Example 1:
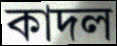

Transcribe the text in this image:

কাদল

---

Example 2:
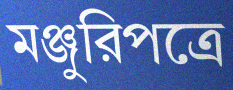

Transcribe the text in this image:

মঞ্জুরিপত্রে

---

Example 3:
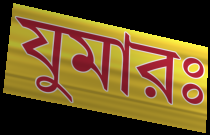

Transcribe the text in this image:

যুমারঃ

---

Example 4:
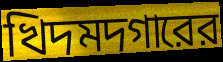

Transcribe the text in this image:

খিদমদগারের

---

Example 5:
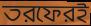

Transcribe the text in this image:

তরফেরই